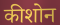
कीशोन